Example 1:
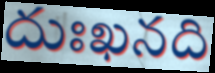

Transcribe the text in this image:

దుఃఖనది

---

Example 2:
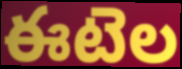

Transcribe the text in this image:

ఈటెల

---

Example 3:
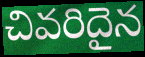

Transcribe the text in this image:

చివరిదైన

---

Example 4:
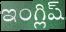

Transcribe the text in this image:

ఇంగ్లిష్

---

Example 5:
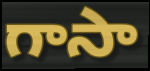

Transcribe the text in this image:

గాసా